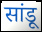
सांडू